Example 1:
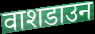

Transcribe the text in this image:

वाशडाउन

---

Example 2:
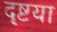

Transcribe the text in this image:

दृष्टया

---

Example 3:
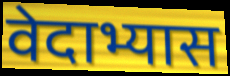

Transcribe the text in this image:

वेदाभ्यास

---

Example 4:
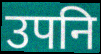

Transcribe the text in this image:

उपनि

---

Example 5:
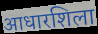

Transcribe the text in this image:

आधारशिला